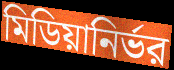
মিডিয়ানির্ভর